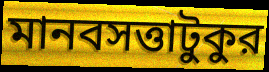
মানবসত্তাটুকুর